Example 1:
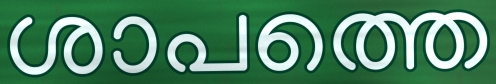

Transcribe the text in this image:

ശാപത്തെ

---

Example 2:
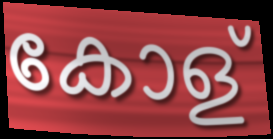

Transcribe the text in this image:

കോള്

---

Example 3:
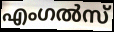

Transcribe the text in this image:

എംഗൽസ്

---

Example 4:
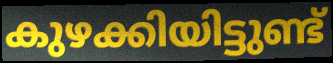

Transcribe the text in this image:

കുഴക്കിയിട്ടുണ്ട്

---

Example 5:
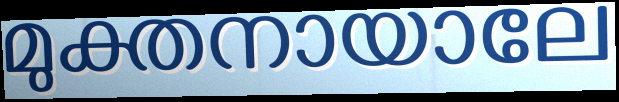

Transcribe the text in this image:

മുക്തനായാലേ